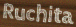
Ruchita